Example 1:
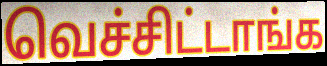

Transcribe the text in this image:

வெச்சிட்டாங்க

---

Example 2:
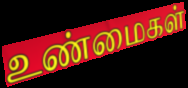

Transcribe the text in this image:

உண்மைகள்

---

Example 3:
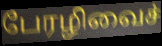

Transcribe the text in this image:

பேரழிவைச்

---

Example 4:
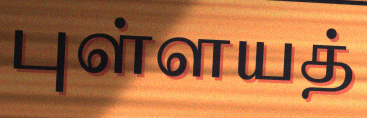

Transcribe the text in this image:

புள்ளயத்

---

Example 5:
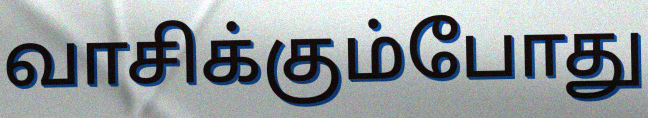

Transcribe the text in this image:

வாசிக்கும்போது